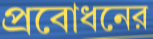
প্রবোধনের